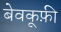
बेवकूफ़ी